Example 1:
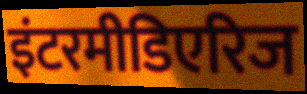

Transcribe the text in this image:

इंटरमीडिएरिज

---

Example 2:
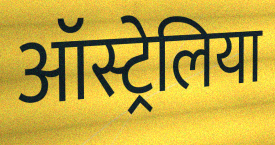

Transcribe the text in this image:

ऑस्ट्रेलिया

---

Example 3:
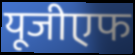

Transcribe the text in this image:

यूजीएफ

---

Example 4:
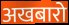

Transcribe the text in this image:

अखबारो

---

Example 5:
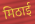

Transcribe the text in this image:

मिठाई